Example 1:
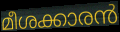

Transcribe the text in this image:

മീശക്കാരൻ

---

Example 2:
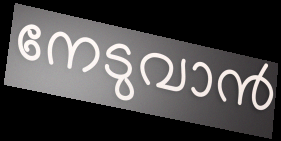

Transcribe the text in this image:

നേടുവാൻ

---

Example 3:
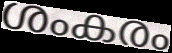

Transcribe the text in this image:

ശംകരം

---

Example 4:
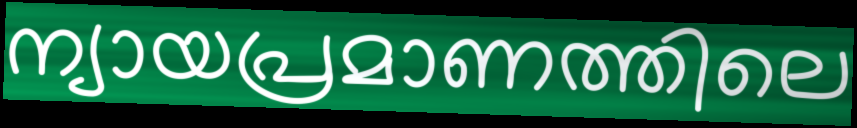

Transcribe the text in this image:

ന്യായപ്രമാണത്തിലെ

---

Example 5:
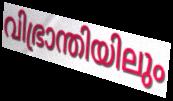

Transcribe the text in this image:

വിഭ്രാന്തിയിലും